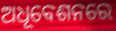
ଅଧୂବେଶନରେ